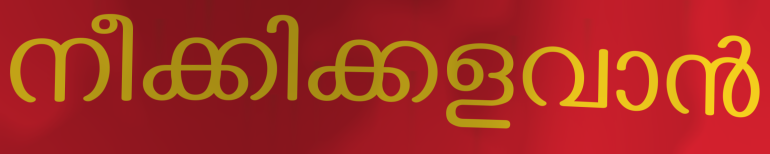
നീക്കിക്കളവാൻ